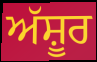
ਅੱਸ਼ੂਰ